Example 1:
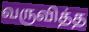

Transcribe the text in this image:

வருவித்த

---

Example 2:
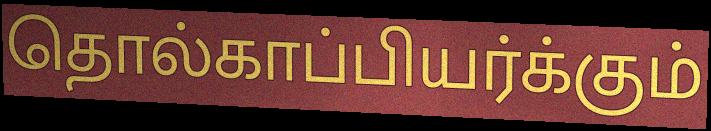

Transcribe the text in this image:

தொல்காப்பியர்க்கும்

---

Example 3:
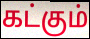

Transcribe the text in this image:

கட்கும்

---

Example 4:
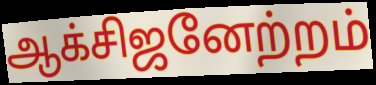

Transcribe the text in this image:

ஆக்சிஜனேற்றம்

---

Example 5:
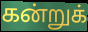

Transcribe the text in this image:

கன்றுக்